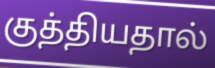
குத்தியதால்